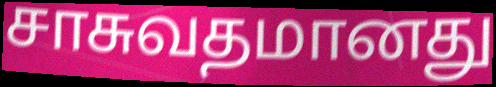
சாசுவதமானது